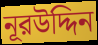
নূরউদ্দিন